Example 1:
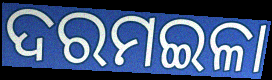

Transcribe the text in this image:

ଦରମଇଳା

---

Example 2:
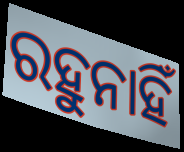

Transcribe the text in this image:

ରହୁନାହିଁ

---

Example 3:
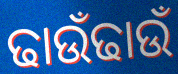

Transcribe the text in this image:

ଢାଉଁଢାଉଁ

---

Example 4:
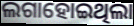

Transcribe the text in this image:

ଲଗାହୋଇଥିଲା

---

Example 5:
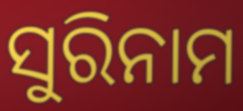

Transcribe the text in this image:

ସୁରିନାମ